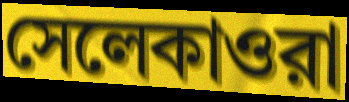
সেলেকাওরা